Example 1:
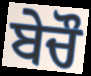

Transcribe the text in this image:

ਬੇਚੌ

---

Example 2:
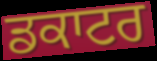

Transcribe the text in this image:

ਡਕਾਟਰ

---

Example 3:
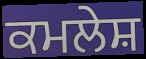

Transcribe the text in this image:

ਕਮਲੇਸ਼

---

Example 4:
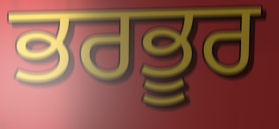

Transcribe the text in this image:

ਭਰਭੂਰ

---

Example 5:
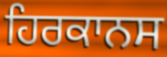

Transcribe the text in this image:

ਹਿਰਕਾਨਸ